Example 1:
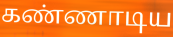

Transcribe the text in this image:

கண்ணாடிய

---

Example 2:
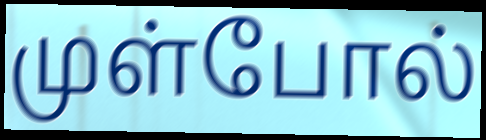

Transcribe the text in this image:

முள்போல்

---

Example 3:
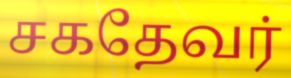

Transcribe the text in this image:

சகதேவர்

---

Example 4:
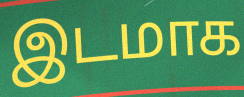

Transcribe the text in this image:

இடமாக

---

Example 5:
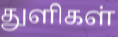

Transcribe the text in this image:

துளிகள்